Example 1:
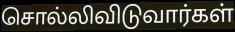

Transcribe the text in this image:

சொல்லிவிடுவார்கள்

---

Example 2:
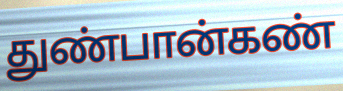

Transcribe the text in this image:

துண்பான்கண்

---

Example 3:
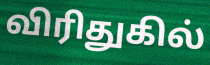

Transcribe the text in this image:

விரிதுகில்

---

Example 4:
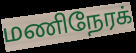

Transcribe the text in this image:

மணிநேரக்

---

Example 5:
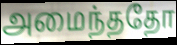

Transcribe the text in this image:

அமைந்ததோ